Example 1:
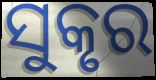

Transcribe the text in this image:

ସୁକୃର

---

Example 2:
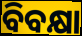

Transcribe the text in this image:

ବିବକ୍ଷା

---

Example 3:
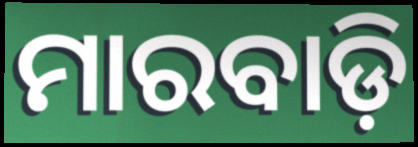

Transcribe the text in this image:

ମାରବାଡ଼ି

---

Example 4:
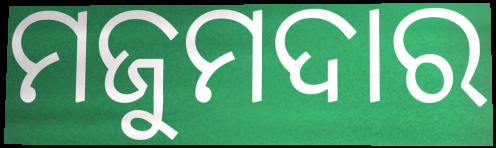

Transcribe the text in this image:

ମଜୁମଦାର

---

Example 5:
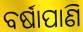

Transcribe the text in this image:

ବର୍ଷାପାଣି